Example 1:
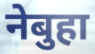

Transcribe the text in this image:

नेबुहा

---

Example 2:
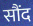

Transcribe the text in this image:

सौंद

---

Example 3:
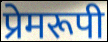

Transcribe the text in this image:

प्रेमरूपी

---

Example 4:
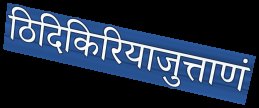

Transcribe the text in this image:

ठिदिकिरियाजुत्ताणं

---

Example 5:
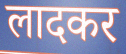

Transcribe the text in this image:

लादकर